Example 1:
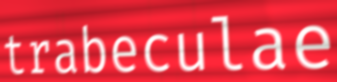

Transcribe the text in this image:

trabeculae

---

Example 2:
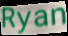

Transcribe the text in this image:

Ryan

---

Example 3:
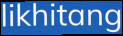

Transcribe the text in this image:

likhitang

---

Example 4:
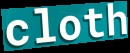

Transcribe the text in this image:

cloth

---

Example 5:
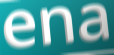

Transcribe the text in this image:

ena